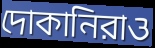
দোকানিরাও